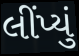
લીંપ્યું